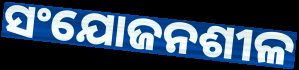
ସଂଯୋଜନଶୀଳ